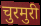
चुरमुरी